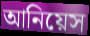
আনিয়েস